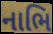
નાભિ